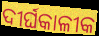
ଦୀର୍ଘକାଳୀକ